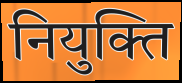
नियुक्ति